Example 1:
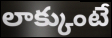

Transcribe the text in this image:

లాక్కుంటే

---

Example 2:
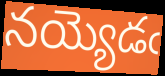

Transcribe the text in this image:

నయ్యెడఁ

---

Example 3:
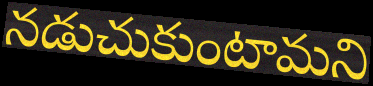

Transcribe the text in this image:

నడుచుకుంటామని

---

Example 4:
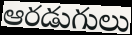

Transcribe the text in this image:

ఆరడుగులు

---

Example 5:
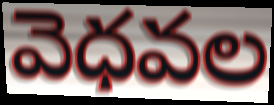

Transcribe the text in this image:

వెధవల